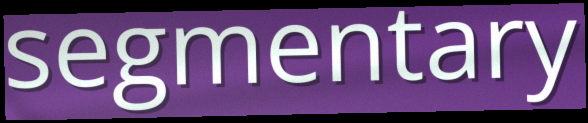
segmentary